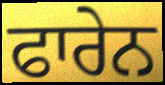
ਫਾਰੇਨ